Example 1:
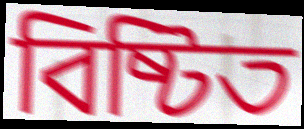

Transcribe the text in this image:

বিষ্টিত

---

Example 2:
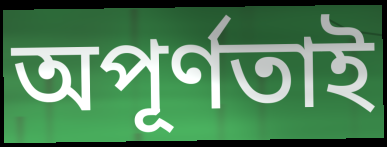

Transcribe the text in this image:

অপূর্ণতাই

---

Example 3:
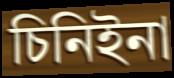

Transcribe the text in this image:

চিনিইনা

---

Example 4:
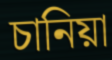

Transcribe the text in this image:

চানিয়া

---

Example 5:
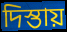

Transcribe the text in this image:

দিস্তায়